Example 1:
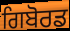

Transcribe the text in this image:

ਗਿਬੋਰਡ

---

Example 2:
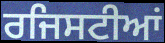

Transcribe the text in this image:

ਰਜਿਸਟੀਆਂ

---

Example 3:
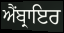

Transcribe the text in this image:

ਐਂਬ੍ਰਾਇਰ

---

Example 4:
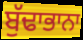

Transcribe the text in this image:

ਬੁੱਢਾਭਾਨਾ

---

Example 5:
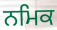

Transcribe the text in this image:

ਨਮਿਕ